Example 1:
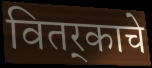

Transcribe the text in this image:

वितर्काचे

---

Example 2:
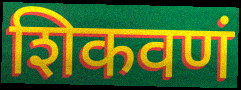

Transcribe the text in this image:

शिकवणं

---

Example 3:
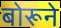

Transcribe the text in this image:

बोरूने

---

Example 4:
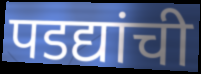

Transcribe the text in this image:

पडद्यांची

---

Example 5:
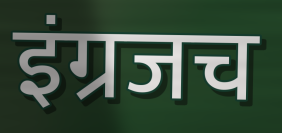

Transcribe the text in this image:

इंग्रजच